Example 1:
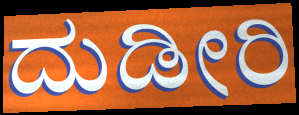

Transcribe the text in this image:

ದುಡೀರಿ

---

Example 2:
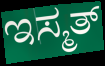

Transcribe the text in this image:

ಇಸ್ಮತ್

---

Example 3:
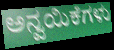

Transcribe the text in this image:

ಅನ್ವಯಿಕೆಗಳು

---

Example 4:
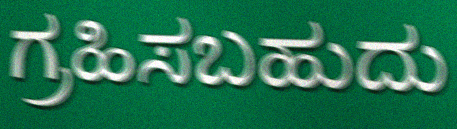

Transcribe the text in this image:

ಗ್ರಹಿಸಬಹುದು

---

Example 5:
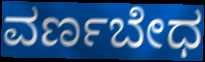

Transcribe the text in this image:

ವರ್ಣಬೇಧ